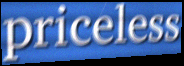
priceless